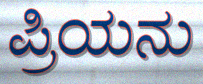
ಪ್ರಿಯನು